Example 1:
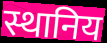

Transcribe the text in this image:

स्थानिय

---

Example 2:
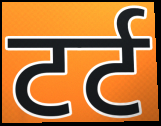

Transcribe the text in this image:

टर्ट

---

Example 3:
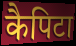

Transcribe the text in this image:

कैपिटा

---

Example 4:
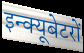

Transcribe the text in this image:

इन्क्यूबेटरों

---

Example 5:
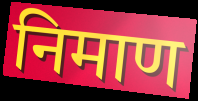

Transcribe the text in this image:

निमाण